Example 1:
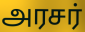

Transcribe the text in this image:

அரசர்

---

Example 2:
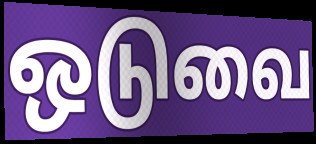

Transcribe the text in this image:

ஒடுவை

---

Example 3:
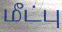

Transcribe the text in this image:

மீட்பு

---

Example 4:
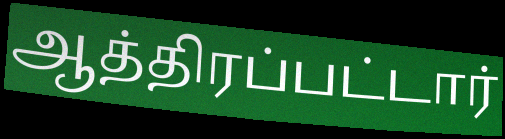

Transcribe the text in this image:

ஆத்திரப்பட்டார்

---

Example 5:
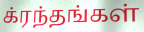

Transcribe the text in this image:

க்ரந்தங்கள்